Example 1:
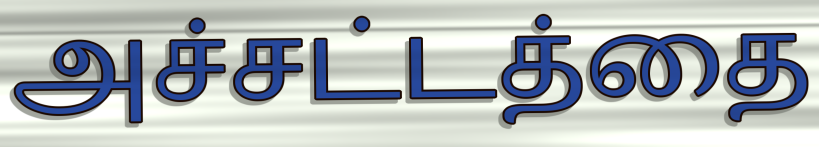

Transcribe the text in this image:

அச்சட்டத்தை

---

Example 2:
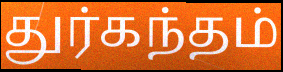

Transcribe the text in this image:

துர்கந்தம்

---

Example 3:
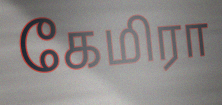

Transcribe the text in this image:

கேமிரா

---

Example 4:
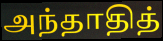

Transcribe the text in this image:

அந்தாதித்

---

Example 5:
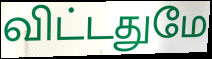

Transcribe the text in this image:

விட்டதுமே